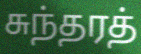
சுந்தரத்